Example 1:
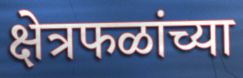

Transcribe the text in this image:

क्षेत्रफळांच्या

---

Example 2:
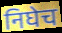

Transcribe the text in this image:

निघेच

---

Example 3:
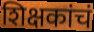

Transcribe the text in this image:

शिक्षकांचं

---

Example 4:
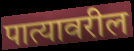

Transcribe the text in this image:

पात्यावरील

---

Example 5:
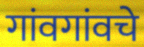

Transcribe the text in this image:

गांवगांवचे